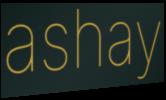
ashay